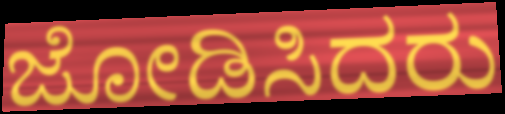
ಜೋಡಿಸಿದರು